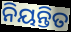
ନିୟନ୍ତିତ